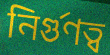
নির্গুণত্ব